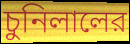
চুনিলালের